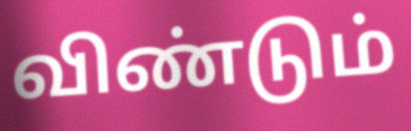
விண்டும்